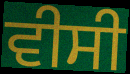
ਵੀਸੀ